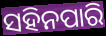
ସହିନପାରି